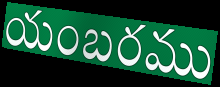
యంబరము